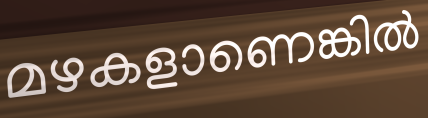
മഴകളാണെങ്കിൽ